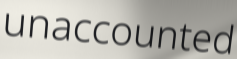
unaccounted